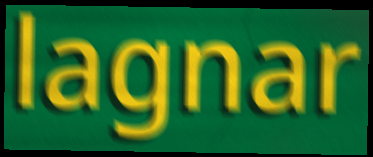
lagnar